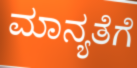
ಮಾನ್ಯತೆಗೆ